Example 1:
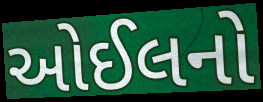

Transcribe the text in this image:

ઓઈલનો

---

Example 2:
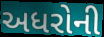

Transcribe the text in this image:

અધરોની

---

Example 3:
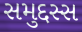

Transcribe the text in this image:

સમુદ્દસ્સ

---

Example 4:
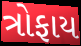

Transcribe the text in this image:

ત્રોફાય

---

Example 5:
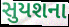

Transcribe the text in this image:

સુયશના